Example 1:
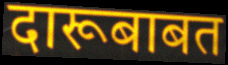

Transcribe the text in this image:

दारूबाबत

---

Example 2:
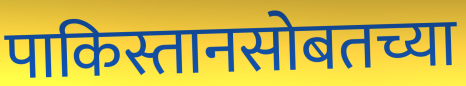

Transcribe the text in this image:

पाकिस्तानसोबतच्या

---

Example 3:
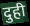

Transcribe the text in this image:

दुही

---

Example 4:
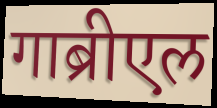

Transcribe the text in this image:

गाब्रीएल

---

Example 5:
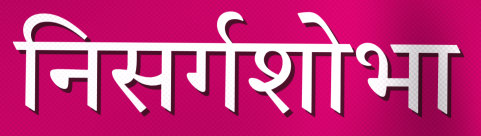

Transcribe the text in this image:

निसर्गशोभा